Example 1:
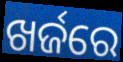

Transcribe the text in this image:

ଖର୍ଜରେ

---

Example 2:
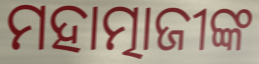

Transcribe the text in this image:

ମହାତ୍ମାଜୀଙ୍କ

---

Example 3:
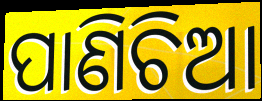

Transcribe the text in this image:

ପାଣିଚିଆ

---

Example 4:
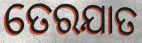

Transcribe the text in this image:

ତେରଯାତ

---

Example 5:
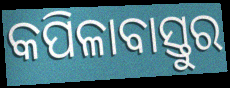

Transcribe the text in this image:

କପିଳାବାସ୍ତୁର